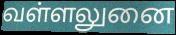
வள்ளலுனை